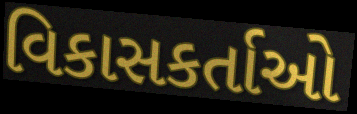
વિકાસકર્તાઓ